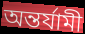
অন্তর্যামী